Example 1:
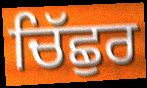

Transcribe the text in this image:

ਚਿੱਛੁਰ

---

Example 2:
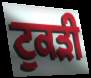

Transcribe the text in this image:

ਟੁਕਡ਼ੀ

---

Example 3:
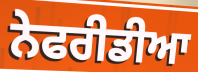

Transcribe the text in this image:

ਨੇਫਰੀਡੀਆ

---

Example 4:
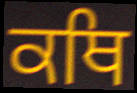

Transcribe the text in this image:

ਕਥਿ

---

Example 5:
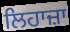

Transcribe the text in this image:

ਲਿਹਾਜ਼ਾ